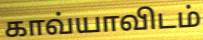
காவ்யாவிடம்